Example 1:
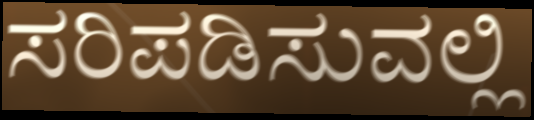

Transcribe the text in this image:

ಸರಿಪಡಿಸುವಲ್ಲಿ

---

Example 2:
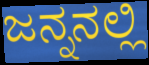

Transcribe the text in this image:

ಜನ್ನನಲ್ಲಿ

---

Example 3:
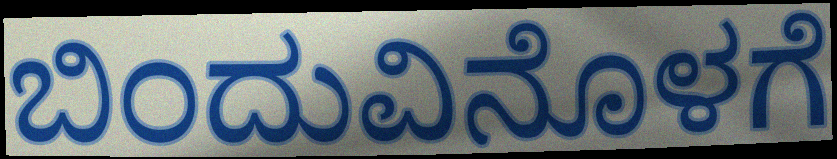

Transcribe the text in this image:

ಬಿಂದುವಿನೊಳಗೆ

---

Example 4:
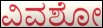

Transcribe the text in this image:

ವಿವಶೋ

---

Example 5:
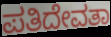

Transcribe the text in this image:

ಪತಿದೇವತಾ